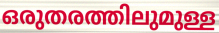
ഒരുതരത്തിലുമുള്ള